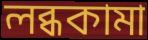
লব্ধকামা